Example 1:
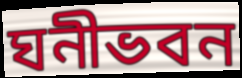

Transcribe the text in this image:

ঘনীভবন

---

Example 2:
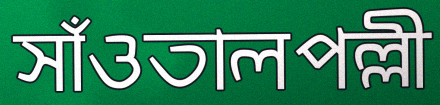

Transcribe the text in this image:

সাঁওতালপল্লী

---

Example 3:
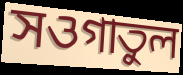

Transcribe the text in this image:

সওগাতুল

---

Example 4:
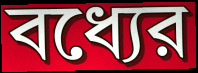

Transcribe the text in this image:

বধ্যের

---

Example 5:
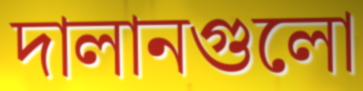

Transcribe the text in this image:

দালানগুলো